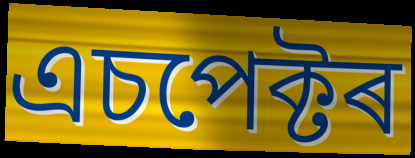
এচপেক্টৰ